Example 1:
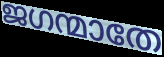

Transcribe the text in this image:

ജഗന്മാതേ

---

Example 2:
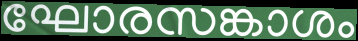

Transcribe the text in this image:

ഘോരസങ്കാശം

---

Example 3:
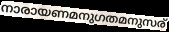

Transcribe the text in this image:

നാരായണമനുഗതമനുസര്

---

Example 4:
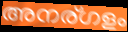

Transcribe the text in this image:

അനര്ഗളം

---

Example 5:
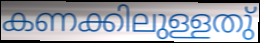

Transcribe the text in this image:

കണക്കിലുള്ളതു്